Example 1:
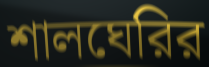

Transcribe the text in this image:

শালঘেরির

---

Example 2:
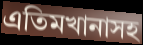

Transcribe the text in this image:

এতিমখানাসহ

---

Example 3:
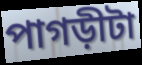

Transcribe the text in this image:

পাগড়ীটা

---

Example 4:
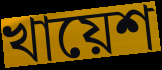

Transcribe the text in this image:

খায়েশ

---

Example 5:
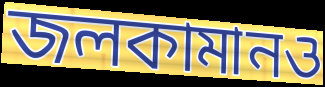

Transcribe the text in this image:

জলকামানও